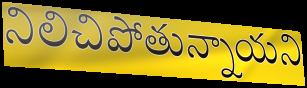
నిలిచిపోతున్నాయని